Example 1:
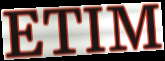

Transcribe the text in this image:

ETIM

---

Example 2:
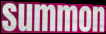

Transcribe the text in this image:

summon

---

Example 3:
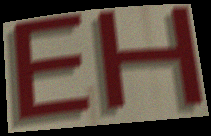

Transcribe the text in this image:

EH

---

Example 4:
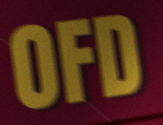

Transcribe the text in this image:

OFD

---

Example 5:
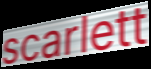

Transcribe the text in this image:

scarlett